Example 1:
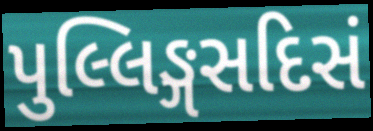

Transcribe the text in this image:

પુલ્લિઙ્ગસદિસં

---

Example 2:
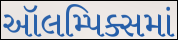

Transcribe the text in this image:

ઑલમ્પિક્સમાં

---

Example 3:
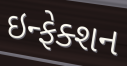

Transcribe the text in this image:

ઇન્ફેક્શન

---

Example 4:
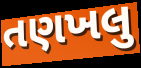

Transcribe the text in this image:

તણખલુ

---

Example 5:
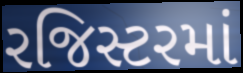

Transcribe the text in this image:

રજિસ્ટરમાં